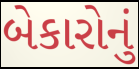
બેકારોનું